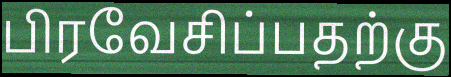
பிரவேசிப்பதற்கு